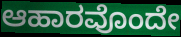
ಆಹಾರವೊಂದೇ